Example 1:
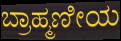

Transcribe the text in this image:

ಬ್ರಾಹ್ಮಣೀಯ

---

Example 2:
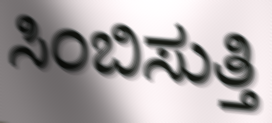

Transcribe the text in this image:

ಸಿಂಬಿಸುತ್ತಿ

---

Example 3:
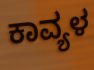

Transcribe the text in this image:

ಕಾವ್ಯಳ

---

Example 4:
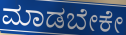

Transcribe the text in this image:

ಮಾಡಬೇಕೇ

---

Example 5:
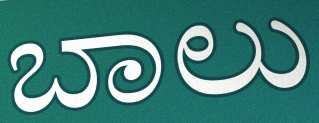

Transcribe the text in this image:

ಬಾಲು